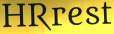
HRrest